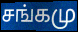
சங்கமு